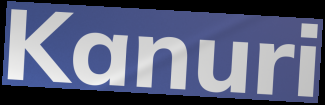
Kanuri